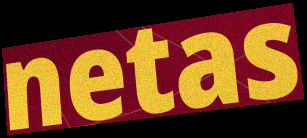
netas